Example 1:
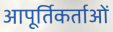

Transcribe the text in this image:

आपूर्तिकर्ताओं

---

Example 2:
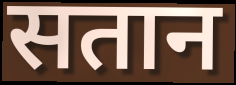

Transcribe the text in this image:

सतान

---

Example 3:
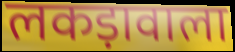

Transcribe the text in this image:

लकड़ावाला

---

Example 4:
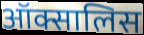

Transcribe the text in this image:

ऑक्सालिस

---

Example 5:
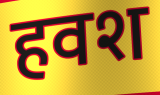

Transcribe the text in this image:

हवश